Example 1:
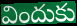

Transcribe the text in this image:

విందుకు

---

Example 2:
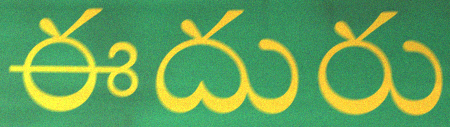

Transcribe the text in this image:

ఈదురు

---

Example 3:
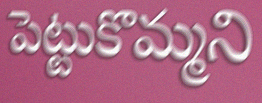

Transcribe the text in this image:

పెట్టుకొమ్మని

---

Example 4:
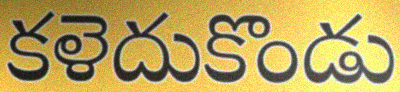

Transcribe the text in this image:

కళెదుకొండు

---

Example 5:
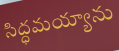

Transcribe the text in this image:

సిద్ధమయ్యాను